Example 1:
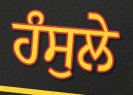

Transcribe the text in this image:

ਹੰਸੁਲੇ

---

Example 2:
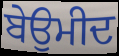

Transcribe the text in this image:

ਬੇਉਮੀਦ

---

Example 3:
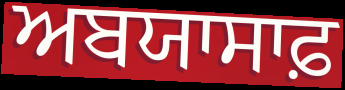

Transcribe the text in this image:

ਅਬਯਾਸਾਫ਼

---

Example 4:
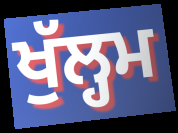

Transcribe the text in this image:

ਖੁੱਲ੍ਹਮ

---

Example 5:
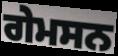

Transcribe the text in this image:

ਗੇਮਸਨ